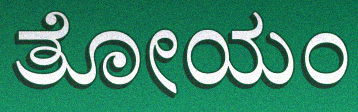
ತೋಯಂ